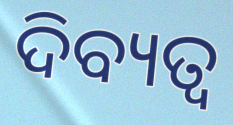
ଦିବ୍ୟତ୍ବ